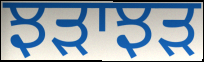
ਝੜਾਝੜ